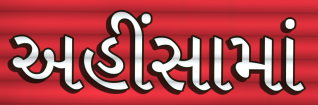
અહીંસામાં